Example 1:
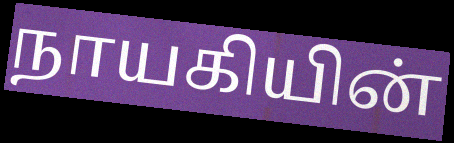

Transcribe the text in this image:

நாயகியின்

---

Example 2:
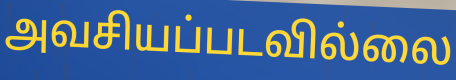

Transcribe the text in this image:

அவசியப்படவில்லை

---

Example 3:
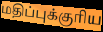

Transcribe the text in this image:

மதிப்புக்குரிய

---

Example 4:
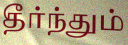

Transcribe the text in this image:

தீர்ந்தும்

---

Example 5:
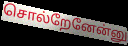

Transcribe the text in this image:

சொல்றேனேன்னு